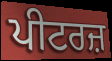
ਪੀਟਰਜ਼